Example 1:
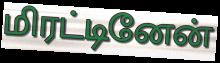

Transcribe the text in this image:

மிரட்டினேன்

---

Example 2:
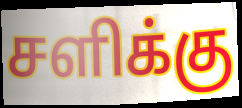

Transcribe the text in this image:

சளிக்கு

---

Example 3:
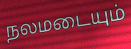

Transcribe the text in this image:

நலமடையும்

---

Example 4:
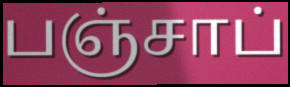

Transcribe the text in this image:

பஞ்சாப்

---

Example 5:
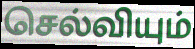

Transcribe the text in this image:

செல்வியும்